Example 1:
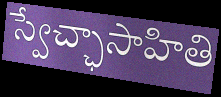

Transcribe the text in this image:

స్వేచ్ఛాసాహితి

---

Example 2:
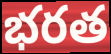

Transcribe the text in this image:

భరత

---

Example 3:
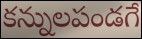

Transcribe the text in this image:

కన్నులపండగే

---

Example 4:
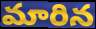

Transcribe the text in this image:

మారిన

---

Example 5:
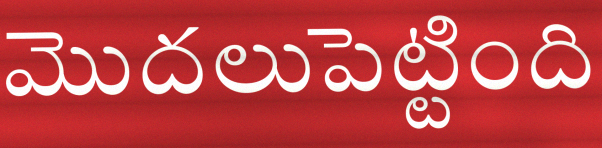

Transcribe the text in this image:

మొదలుపెట్టింది